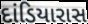
દાંડિયારાસ